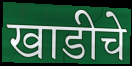
खाडीचे